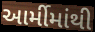
આર્મીમાંથી